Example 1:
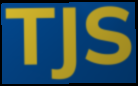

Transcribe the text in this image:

TJS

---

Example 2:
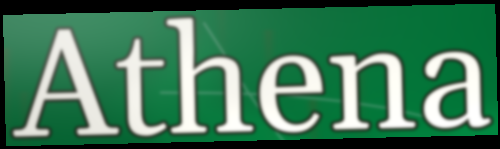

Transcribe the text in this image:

Athena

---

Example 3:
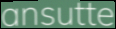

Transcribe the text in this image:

ansutte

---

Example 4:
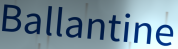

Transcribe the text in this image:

Ballantine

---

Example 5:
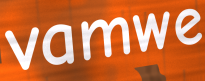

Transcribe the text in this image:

vamwe